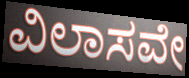
ವಿಲಾಸವೇ